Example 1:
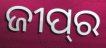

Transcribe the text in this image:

ଜୀପ୍‌ର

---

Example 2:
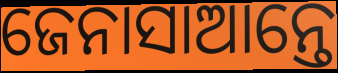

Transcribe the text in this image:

ଜେନାସାଆନ୍ତେ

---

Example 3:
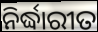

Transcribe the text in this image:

ନିର୍ଦ୍ଧାରୀତ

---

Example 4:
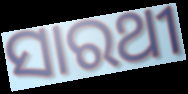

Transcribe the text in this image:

ସାରଥୀ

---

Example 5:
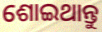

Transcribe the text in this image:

ଶୋଇଥାନ୍ତୁ